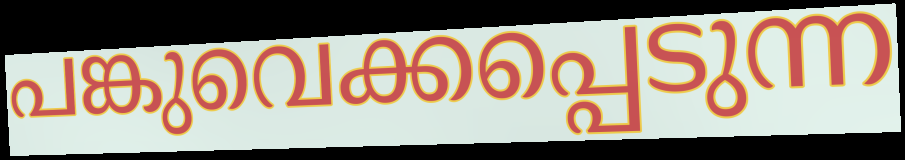
പങ്കുവെക്കപ്പെടുന്ന